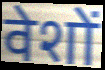
वेशों